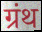
ग्रंथ